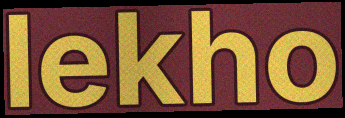
lekho